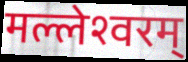
मल्लेश्वरम्